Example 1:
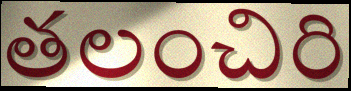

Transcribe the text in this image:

తలంచిరి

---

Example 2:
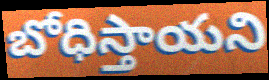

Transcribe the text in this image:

బోధిస్తాయని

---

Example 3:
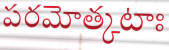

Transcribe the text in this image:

పరమోత్కటాః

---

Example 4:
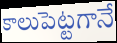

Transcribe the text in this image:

కాలుపెట్టగానే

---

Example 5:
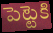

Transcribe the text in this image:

పెట్టెకి